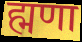
ह्मणा